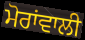
ਮੋਰਾਂਵਾਲੀ